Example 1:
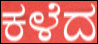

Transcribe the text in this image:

ಕಳೆದ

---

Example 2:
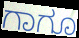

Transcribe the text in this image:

ಗಾಗೂ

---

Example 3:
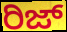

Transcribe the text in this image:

ರಿಜ್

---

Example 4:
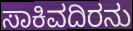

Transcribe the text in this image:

ಸಾಕಿವದಿರನು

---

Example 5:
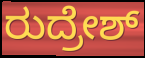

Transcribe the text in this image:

ರುದ್ರೇಶ್